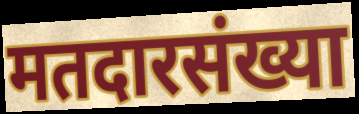
मतदारसंख्या